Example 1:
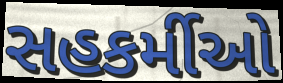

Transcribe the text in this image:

સહકર્મીઓ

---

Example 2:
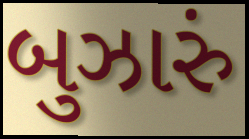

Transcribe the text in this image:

બુઝારું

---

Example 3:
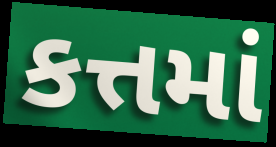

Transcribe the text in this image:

કત્તમાં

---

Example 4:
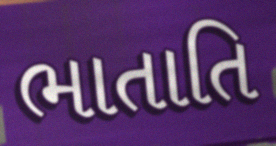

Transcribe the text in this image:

ભાતાતિ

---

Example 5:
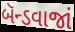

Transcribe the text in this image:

બૅન્ડવાજાં